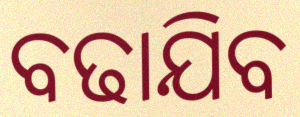
ବଢାଯିବ